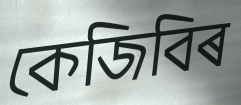
কেজিবিৰ